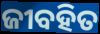
ଜୀବହିତ